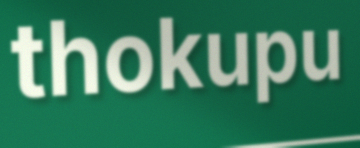
thokupu